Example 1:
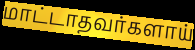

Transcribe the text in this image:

மாட்டாதவர்களாய்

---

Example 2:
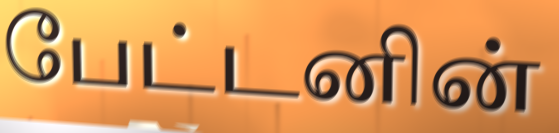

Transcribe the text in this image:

பேட்டனின்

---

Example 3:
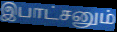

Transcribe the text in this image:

இபாட்சனும்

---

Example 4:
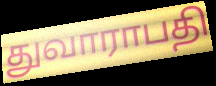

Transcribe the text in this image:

துவாராபதி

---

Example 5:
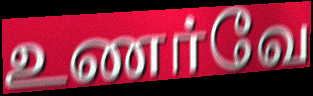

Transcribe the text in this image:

உணர்வே